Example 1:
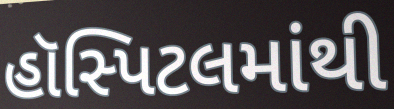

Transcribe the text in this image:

હૉસ્પિટલમાંથી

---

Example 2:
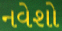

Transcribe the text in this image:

નવેશો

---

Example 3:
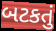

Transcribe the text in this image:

બટકતું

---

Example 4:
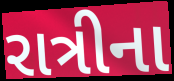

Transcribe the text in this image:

રાત્રીના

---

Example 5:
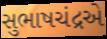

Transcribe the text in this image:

સુભાષચંદ્રએ